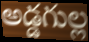
అడ్డగుల్ల